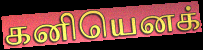
கனியெனக்